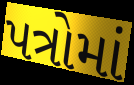
પત્રોમાં